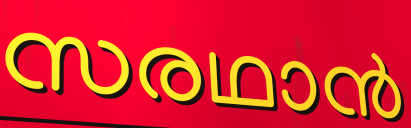
സരഥാൻ